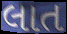
લાત